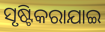
ସୃଷ୍ଟିକରାଯାଇ